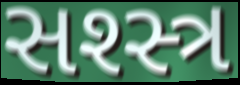
સશ્સ્ત્ર